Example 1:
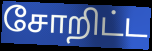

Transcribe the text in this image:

சோறிட்ட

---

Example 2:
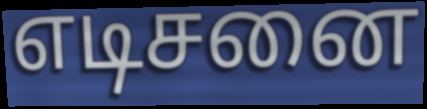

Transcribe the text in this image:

எடிசனை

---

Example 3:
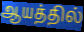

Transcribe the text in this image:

ஆயத்தில்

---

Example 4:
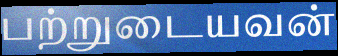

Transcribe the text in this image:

பற்றுடையவன்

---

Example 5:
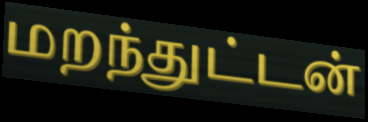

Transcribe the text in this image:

மறந்துட்டன்